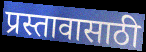
प्रस्तावासाठी